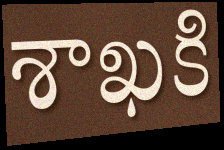
శాఖకి